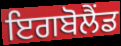
ਇਗਬੋਲੈਂਡ